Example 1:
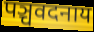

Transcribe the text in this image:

पञ्चवदनाय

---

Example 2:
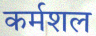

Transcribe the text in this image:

कर्मशल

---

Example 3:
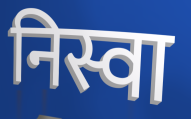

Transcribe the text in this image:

निस्वा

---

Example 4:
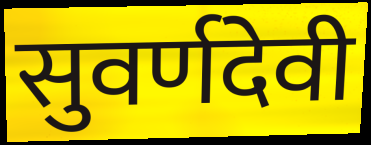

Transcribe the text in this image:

सुवर्णदेवी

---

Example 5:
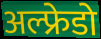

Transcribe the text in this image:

अल्फ्रेडो